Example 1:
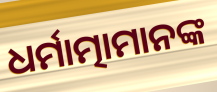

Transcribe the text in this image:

ଧର୍ମାତ୍ମାମାନଙ୍କ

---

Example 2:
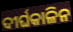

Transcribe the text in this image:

ଦୀର୍ଘକାଳିନ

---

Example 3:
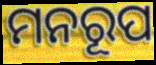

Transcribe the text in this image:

ମନରୂପ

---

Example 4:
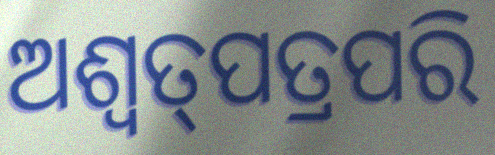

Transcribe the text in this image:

ଅଶ୍ଵତ୍‌ପତ୍ରପରି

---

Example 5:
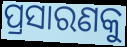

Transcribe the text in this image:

ପ୍ରସାରଣକୁ